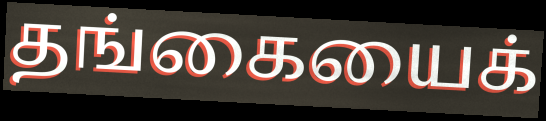
தங்கையைக்